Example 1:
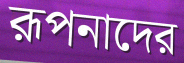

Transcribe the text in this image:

রূপনাদের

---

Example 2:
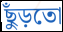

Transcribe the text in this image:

ছুঁড়তো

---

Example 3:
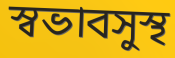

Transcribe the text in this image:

স্বভাবসুস্থ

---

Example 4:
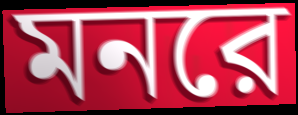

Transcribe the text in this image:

মনরে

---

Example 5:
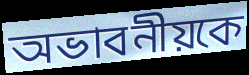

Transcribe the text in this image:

অভাবনীয়কে